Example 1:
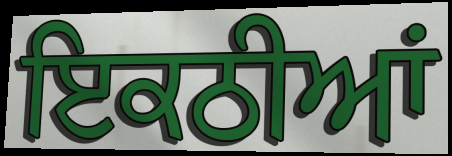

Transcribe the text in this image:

ਇਕਠੀਆਂ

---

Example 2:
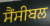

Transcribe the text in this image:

ਸੈਂਸੀਬਲ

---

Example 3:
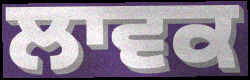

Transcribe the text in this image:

ਲਾਵਕ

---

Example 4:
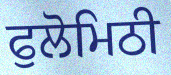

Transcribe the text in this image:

ਫੁਲੋਮਿਠੀ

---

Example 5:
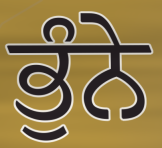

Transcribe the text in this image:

ਭੁੰਨੇ